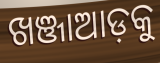
ଖଞ୍ଜାଆଡ଼କୁ